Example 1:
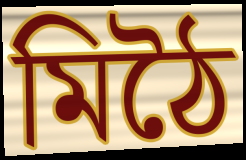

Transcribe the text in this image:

মিঠৈ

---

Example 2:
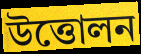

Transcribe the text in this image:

উত্তোলন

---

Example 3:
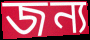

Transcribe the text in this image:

জন্য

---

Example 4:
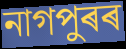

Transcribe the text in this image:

নাগপুৰৰ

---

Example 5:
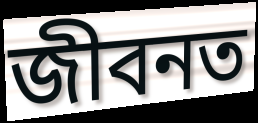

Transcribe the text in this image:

জীবনত